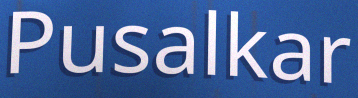
Pusalkar